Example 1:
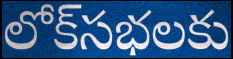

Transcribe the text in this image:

లోక్‌సభలకు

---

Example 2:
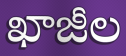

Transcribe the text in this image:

ఖాజీల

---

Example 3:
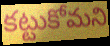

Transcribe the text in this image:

కట్టుకోమని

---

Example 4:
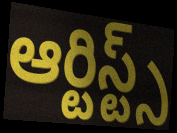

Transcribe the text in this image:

ఆర్టిస్ట్స్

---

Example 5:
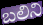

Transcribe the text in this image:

బలిని